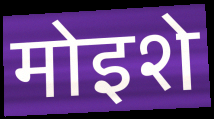
मोइशे